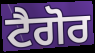
ਟੈਗੋਰ